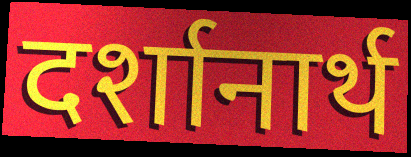
दर्शानार्थ